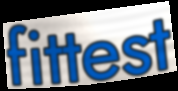
fittest